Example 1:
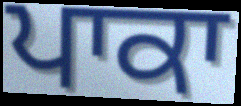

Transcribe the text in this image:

ਪਾਕਾ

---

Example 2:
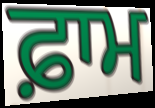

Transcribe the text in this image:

ਫ਼ਾਮ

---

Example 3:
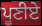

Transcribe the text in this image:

ਪੂਣੀਏ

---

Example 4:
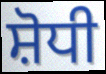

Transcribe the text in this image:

ਸ਼ੋਧੀ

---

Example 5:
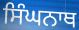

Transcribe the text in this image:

ਸਿੰਘਨਾਥ